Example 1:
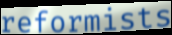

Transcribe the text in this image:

reformists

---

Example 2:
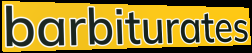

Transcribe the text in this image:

barbiturates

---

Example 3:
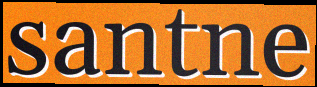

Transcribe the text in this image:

santne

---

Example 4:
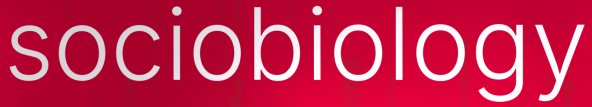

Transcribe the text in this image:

sociobiology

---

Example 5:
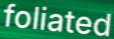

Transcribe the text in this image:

foliated